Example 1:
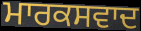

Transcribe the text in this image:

ਮਾਰਕਸਵਾਦ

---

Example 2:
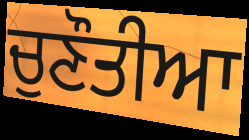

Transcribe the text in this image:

ਚੁਣੌਤੀਆ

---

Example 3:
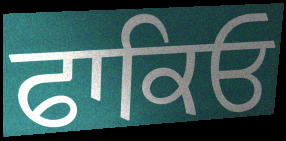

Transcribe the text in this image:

ਫਾਕਿਓ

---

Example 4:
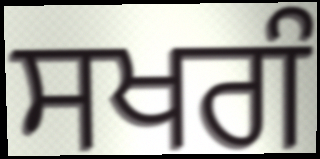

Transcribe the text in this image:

ਸਖਗੰ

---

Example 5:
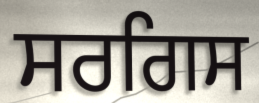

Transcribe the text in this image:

ਸਰਗਿਸ